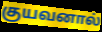
குயவனால்